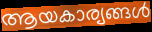
ആയകാര്യങ്ങൾ